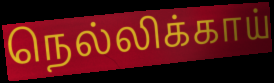
நெல்லிக்காய்